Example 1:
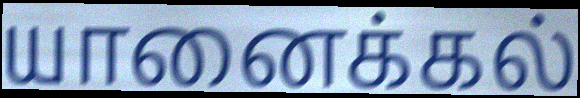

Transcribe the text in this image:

யானைக்கல்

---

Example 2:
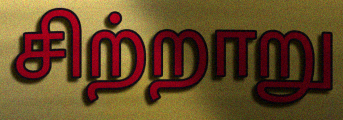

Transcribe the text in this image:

சிற்றாறு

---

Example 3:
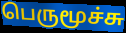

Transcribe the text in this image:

பெருமூச்சு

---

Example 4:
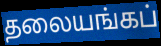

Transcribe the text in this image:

தலையங்கப்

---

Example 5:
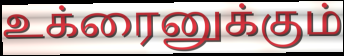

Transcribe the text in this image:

உக்ரைனுக்கும்